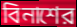
বিনাশের